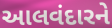
આલવંદારને